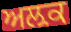
ਅਲ਼ਕ